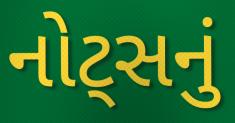
નોટ્સનું